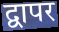
द्वापर